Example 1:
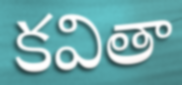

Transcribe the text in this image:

కవితా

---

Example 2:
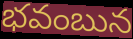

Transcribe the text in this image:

భవంబున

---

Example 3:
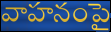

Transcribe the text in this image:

వాహనంపై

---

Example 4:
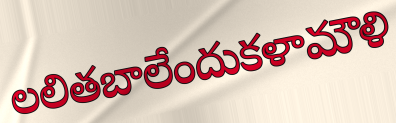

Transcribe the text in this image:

లలితబాలేందుకళామౌళి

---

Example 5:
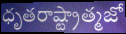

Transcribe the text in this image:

ధృతరాష్ట్రాత్మజో